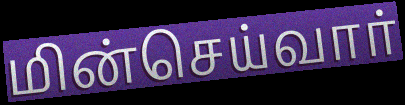
மின்செய்வார்